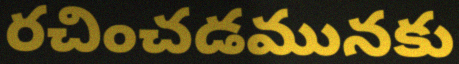
రచించడమునకు